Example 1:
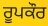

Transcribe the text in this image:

ਰੂਪਕੌਰ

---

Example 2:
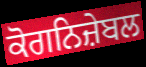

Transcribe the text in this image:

ਕੋਗਨਿਜ਼ੇਬਲ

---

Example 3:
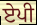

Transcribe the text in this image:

ਏਪੀ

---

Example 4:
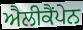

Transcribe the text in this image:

ਐਲੀਕੈਂਪੇਨ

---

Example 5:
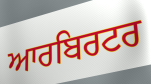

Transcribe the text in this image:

ਆਰਬਿਰਟਰ